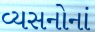
વ્યસનોનાં